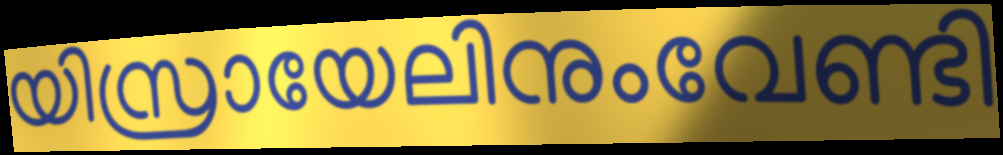
യിസ്രായേലിനുംവേണ്ടി